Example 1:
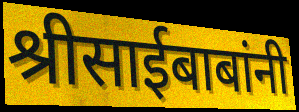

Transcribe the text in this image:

श्रीसाईबाबांनी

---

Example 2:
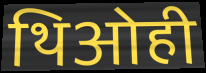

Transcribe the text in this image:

थिओही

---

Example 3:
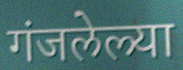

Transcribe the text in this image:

गंजलेल्या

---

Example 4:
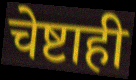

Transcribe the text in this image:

चेष्टाही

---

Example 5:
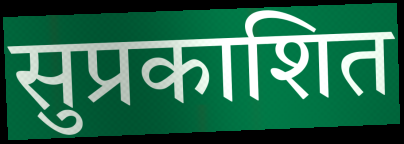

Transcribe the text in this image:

सुप्रकाशित